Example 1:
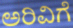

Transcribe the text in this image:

ಅರಿವಿಗೆ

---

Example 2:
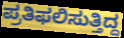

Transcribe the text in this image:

ಪ್ರತಿಫಲಿಸುತ್ತಿದ್ದ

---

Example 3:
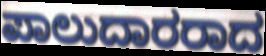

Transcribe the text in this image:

ಪಾಲುದಾರರಾದ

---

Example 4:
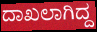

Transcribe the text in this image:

ದಾಖಲಾಗಿದ್ದ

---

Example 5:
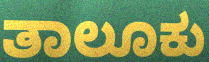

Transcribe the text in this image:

ತಾಲೂಕು